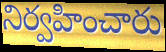
నిర్వహించారు